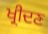
ਖ੍ਰੀਦਣ